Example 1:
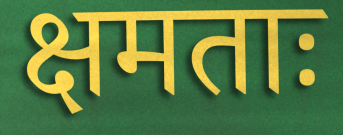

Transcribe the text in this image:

क्षमताः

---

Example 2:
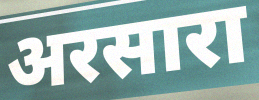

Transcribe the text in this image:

अरसारा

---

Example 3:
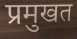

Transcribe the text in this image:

प्रमुखत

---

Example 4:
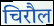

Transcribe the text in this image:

चिरौल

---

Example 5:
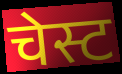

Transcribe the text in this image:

चेस्‍ट